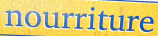
nourriture